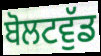
ਬੋਲਟਵੁੱਡ